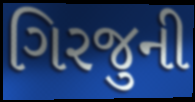
ગિરજુની